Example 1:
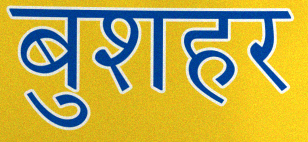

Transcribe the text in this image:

बुशहर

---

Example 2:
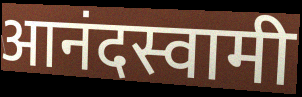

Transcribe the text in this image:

आनंदस्वामी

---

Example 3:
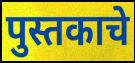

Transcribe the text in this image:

पुस्तकाचे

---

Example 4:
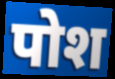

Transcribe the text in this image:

पोश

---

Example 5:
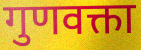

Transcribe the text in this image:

गुणवक्ता